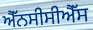
ਐੱਨਸੀਸੀਐੱਸ